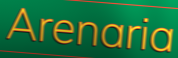
Arenaria